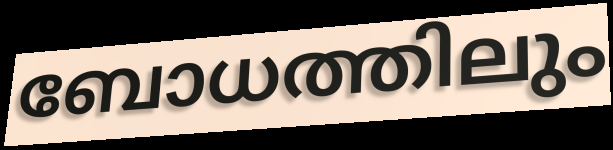
ബോധത്തിലും